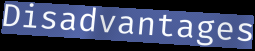
Disadvantages